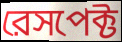
রেসপেক্ট